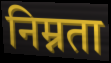
निम्नता